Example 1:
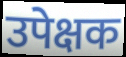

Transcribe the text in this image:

उपेक्षक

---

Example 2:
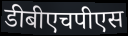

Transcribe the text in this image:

डीबीएचपीएस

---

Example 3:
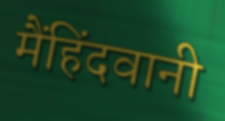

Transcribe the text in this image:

मैंहिंदवानी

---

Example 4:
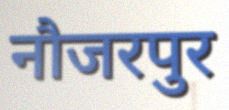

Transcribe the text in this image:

नौजरपुर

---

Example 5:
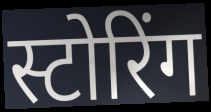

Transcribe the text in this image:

स्टोरिंग